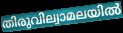
തിരുവില്വാമലയിൽ